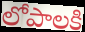
లోపాలకి